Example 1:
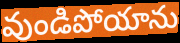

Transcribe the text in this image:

వుండిపోయాను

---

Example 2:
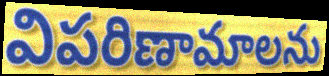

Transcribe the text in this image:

విపరిణామాలను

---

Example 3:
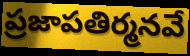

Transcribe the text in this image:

ప్రజాపతిర్మనవే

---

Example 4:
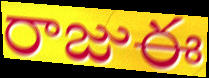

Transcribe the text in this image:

రాజుఈ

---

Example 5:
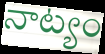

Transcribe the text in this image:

నాట్యం